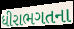
ધીરાભગતના